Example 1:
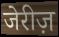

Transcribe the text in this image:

जेरीज़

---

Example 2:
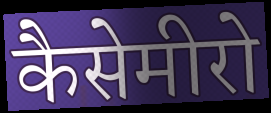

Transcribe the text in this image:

कैसेमीरो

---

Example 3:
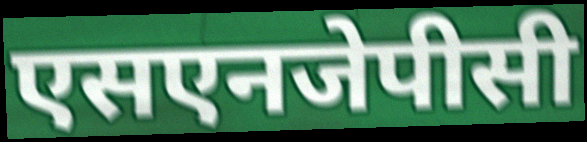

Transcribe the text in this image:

एसएनजेपीसी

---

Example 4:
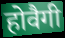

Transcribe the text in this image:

होवैगी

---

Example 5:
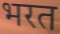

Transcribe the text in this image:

भरत